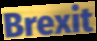
Brexit